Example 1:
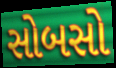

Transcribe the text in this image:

સોબસો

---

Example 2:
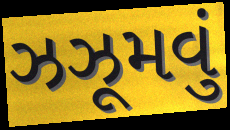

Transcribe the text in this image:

ઝઝૂમવું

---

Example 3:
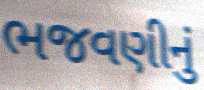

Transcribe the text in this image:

ભજવણીનું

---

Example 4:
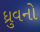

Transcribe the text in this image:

ધ્રુવનો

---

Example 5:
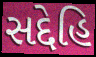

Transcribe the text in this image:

સદ્દેહિ